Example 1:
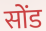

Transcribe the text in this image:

सोंड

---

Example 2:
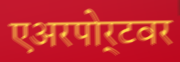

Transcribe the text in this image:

एअरपोर्टवर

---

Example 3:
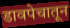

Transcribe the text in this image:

डावपेचातून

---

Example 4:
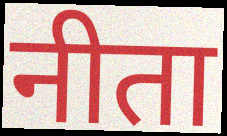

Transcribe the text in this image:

नीता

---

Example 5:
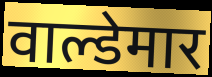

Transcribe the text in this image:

वाल्डेमार